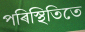
পৰিস্থিতিতে